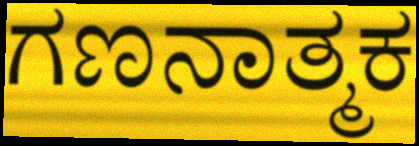
ಗಣನಾತ್ಮಕ